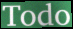
Todo